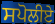
ਸਪੋਲੀਏ